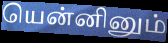
யென்னினும்